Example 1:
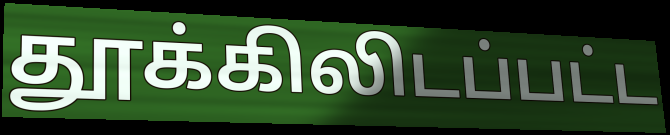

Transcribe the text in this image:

தூக்கிலிடப்பட்ட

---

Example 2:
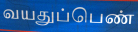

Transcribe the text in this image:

வயதுப்பெண்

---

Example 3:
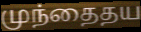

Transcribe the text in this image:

முந்தைதய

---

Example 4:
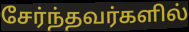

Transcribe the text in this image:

சேர்ந்தவர்களில்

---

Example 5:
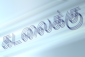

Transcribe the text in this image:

கடலைக்கு